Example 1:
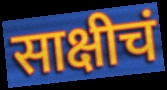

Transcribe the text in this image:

साक्षीचं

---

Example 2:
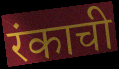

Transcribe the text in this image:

रंकाची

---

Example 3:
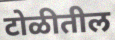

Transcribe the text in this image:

टोळीतील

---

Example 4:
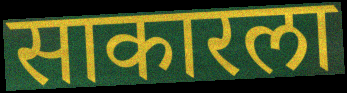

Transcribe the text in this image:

साकारला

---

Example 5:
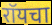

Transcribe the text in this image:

रॉयचा